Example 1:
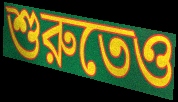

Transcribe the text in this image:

শুরুতেও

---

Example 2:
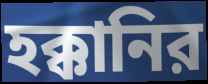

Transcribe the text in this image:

হক্কানির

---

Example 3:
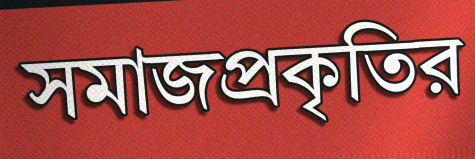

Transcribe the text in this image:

সমাজপ্রকৃতির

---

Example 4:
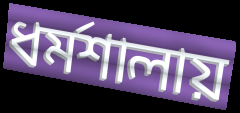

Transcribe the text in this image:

ধর্মশালায়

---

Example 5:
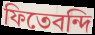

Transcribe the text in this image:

ফিতেবন্দি